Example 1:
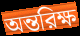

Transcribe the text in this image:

অন্তরিক্ষ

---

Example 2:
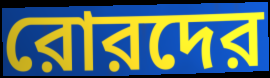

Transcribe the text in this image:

রোরদের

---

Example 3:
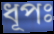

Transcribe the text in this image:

ধূপঃ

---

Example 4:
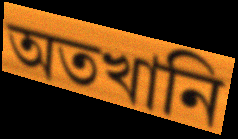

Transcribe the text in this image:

অতখানি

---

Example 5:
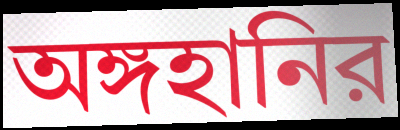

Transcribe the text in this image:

অঙ্গহানির